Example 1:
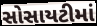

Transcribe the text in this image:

સોસાયટીમાં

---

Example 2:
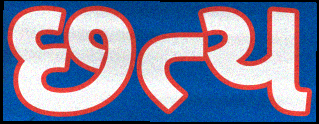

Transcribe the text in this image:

છત્ય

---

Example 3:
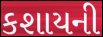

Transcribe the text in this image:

કશાયની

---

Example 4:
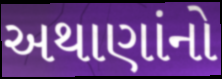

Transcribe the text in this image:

અથાણાંનો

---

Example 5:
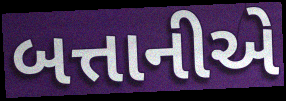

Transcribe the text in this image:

બત્તાનીએ